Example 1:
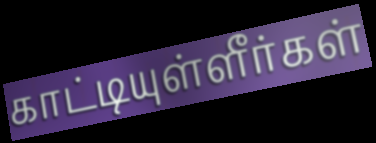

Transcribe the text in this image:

காட்டியுள்ளீர்கள்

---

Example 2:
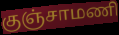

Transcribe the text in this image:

குஞ்சாமணி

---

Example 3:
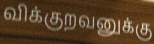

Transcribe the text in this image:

விக்குறவனுக்கு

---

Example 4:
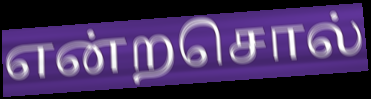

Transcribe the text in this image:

என்றசொல்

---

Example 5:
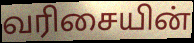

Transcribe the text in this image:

வரிசையின்